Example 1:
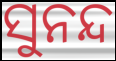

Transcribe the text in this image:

ସୁନନ୍ଦ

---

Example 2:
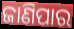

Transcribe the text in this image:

ଜାଣିପାର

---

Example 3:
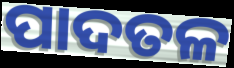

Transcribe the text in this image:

ପାଦତଳ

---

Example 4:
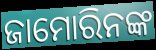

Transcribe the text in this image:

ଜାମୋରିନଙ୍କ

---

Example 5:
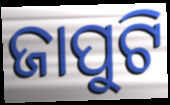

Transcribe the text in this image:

ଜାପୁଟି